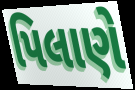
પિલાણે